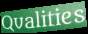
Qualities